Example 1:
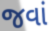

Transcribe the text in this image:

જવાં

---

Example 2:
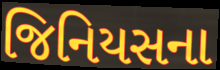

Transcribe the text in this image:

જિનિયસના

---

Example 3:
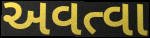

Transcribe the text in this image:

અવત્વા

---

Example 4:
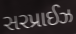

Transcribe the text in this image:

સરપ્રાઈઝ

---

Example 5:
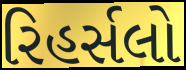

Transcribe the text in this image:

રિહર્સલો